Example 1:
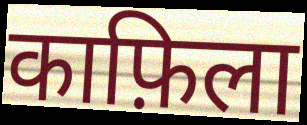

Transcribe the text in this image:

काफ़िला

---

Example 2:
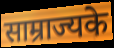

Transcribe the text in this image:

साम्राज्यके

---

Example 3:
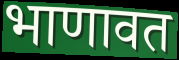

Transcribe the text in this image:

भाणावत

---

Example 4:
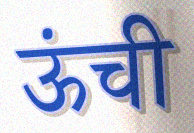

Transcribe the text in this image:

ऊंची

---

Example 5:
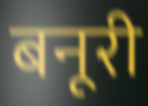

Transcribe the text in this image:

बनूरी